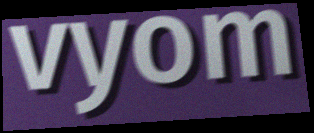
vyom